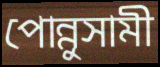
পোন্নুসামী